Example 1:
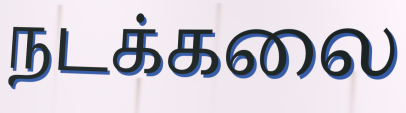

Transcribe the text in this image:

நடக்கலை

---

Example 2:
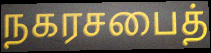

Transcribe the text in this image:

நகரசபைத்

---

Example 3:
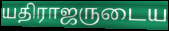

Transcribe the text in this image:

யதிராஜருடைய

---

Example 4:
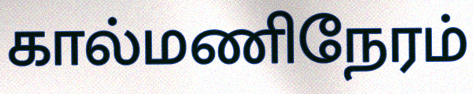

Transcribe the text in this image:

கால்மணிநேரம்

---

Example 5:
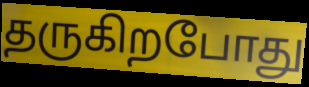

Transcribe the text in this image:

தருகிறபோது